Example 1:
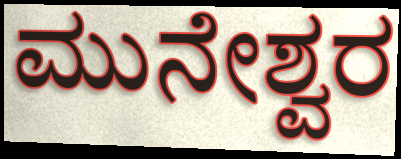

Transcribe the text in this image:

ಮುನೇಶ್ವರ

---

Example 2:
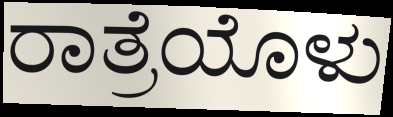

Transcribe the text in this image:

ರಾತ್ರೆಯೊಳು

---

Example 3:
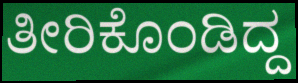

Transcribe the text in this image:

ತೀರಿಕೊಂಡಿದ್ದ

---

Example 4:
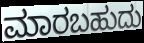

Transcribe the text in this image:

ಮಾರಬಹುದು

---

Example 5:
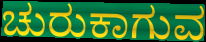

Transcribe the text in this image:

ಚುರುಕಾಗುವ